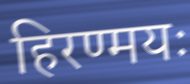
हिरण्मयः